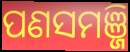
ପଣସମଞ୍ଜି